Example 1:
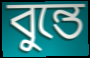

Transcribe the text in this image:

বুন্তে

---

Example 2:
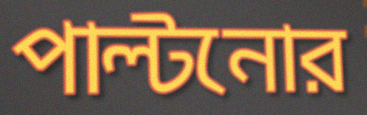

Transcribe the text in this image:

পাল্টনোর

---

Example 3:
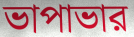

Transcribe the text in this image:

ভাপাভার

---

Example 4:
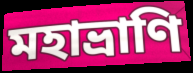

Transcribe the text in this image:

মহাভ্রাণি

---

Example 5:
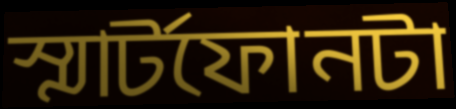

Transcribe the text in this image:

স্মার্টফোনটা